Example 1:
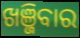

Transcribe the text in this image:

ଖଞ୍ଜିବାର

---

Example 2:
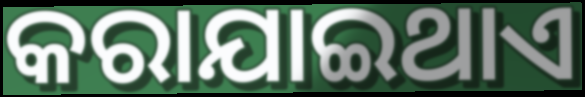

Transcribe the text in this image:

କରାଯାଇଥାଏ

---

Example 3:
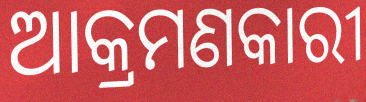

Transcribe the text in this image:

ଆକ୍ରମଣକାରୀ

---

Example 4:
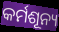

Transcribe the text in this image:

କର୍ମଶୂନ୍ୟ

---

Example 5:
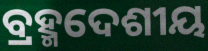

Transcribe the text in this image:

ବ୍ରହ୍ମଦେଶୀୟ